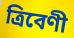
ত্রিবেণী